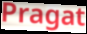
Pragat